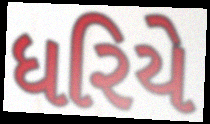
ધરિયે